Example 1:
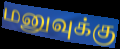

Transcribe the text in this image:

மனுவுக்கு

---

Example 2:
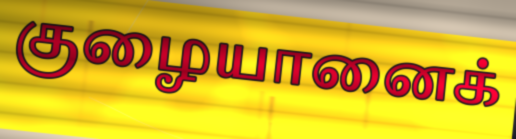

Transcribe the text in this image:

குழையானைக்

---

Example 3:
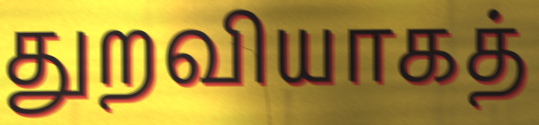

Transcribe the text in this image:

துறவியாகத்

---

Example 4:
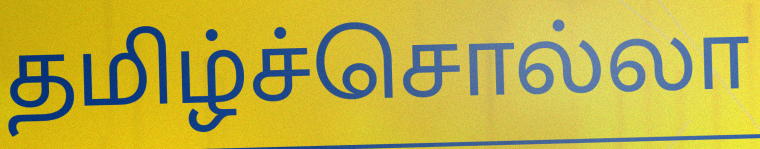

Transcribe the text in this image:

தமிழ்ச்சொல்லா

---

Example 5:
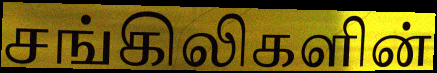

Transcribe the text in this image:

சங்கிலிகளின்